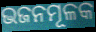
ଭଜନମୂଳକ